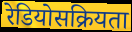
रेडियोसक्रियता